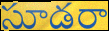
సూడరా